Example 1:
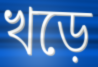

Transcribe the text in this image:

খড়ে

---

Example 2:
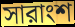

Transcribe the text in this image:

সারাংশ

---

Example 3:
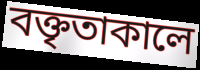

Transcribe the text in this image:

বক্তৃতাকালে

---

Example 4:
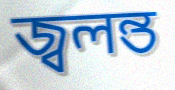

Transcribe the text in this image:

জ্বলন্ত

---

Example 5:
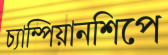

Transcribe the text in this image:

চ্যাম্পিয়ানশিপে